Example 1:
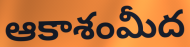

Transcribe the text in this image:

ఆకాశంమీద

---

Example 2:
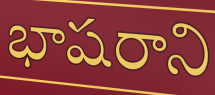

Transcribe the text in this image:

భాషరాని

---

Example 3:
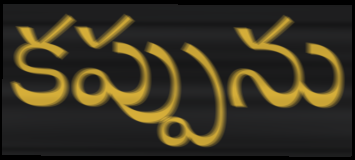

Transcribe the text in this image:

కప్పును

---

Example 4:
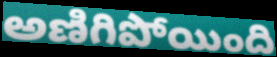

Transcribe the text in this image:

అణిగిపోయింది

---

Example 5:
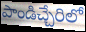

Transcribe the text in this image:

పాండిచ్చేరిలో